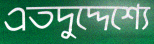
এতদুদ্দেশ্যে